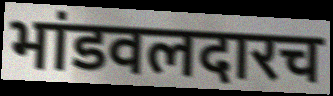
भांडवलदारच